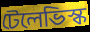
টেলেভিস্ক